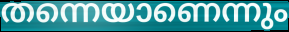
തന്നെയാണെന്നും